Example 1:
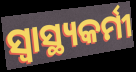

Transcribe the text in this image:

ସ୍ୱାସ୍ଥ୍ୟକର୍ମୀ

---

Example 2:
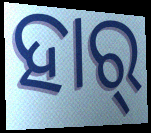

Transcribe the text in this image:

ହାର୍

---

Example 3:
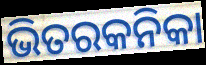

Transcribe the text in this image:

ଭିତରକନିକା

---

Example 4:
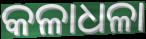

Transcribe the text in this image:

କଳାଧଳା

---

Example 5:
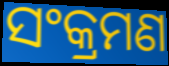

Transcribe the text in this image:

ସଂକ୍ରମଣ